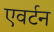
एवर्टन